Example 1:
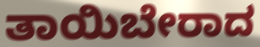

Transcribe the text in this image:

ತಾಯಿಬೇರಾದ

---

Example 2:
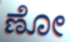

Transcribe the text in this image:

ಣೋ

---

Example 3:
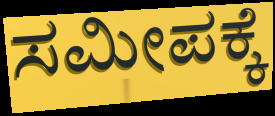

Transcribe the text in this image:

ಸಮೀಪಕ್ಕೆ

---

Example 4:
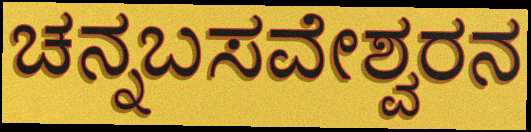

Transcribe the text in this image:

ಚನ್ನಬಸವೇಶ್ವರನ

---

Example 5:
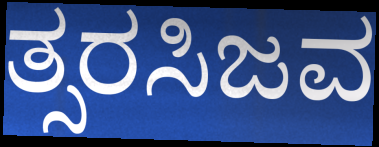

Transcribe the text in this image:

ತ್ಸರಸಿಜವ